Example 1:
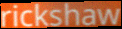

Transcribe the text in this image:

rickshaw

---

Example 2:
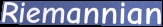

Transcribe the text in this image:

Riemannian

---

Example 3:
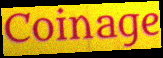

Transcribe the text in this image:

Coinage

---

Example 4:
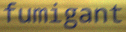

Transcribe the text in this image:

fumigant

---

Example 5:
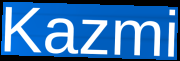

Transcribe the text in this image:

Kazmi